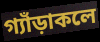
গ্যাঁড়াকলে